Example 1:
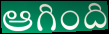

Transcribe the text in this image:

ఆగింది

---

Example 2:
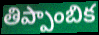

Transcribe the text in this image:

తిప్పాంబిక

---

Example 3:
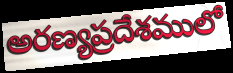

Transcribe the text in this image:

అరణ్యప్రదేశములో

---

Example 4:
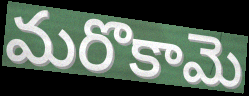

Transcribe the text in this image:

మరొకామె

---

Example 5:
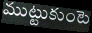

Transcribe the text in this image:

ముట్టుకుంటె